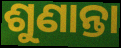
ଶୁଣାନ୍ତା